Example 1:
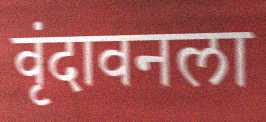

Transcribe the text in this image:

वृंदावनला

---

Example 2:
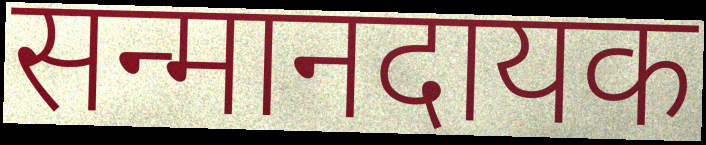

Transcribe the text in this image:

सन्मानदायक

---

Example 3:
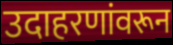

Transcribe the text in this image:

उदाहरणांवरून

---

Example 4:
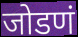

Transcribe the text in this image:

जोडणं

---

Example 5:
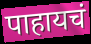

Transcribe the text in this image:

पाहायचं